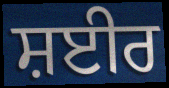
ਸ਼ਈਰ